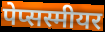
पेप्सस्मीयर